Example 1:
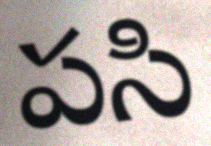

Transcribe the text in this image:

పసి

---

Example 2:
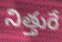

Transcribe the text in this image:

నిత్తురే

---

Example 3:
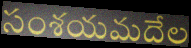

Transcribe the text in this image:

సంశయమదేల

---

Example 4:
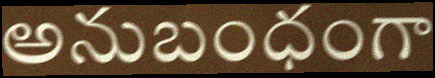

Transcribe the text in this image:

అనుబంధంగా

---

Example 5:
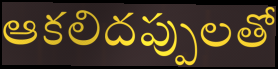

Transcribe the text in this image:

ఆకలిదప్పులతో